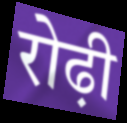
रोढ़ी